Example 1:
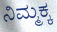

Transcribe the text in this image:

ನಿಮ್ಮಕ್ಕ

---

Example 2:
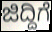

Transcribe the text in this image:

ಜಿದ್ದಿಗೆ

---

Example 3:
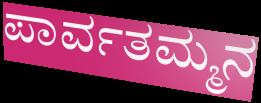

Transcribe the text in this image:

ಪಾರ್ವತಮ್ಮನ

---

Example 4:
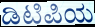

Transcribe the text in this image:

ಡಿಟಿಪಿಯ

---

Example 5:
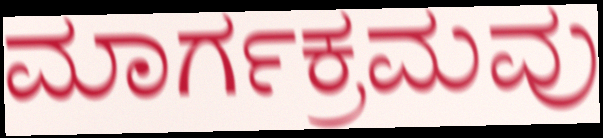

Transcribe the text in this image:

ಮಾರ್ಗಕ್ರಮವು